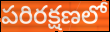
పరిరక్షణలో